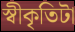
স্বীকৃতিটা